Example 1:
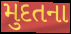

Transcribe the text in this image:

મુદતના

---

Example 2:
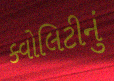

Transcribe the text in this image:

ક્વોલિટીનું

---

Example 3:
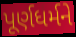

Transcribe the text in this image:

પૂર્ણધર્મને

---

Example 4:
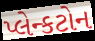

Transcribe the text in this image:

પ્લેન્કટોન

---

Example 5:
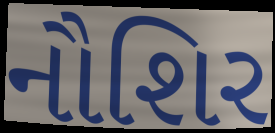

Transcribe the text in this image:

નૌશિર